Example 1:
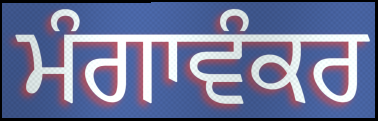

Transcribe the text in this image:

ਮੰਗਾਵੰਕਰ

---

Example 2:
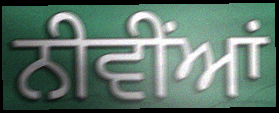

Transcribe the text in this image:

ਨੀਵੀਂਆਂ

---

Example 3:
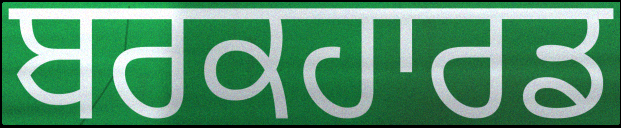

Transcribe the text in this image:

ਬਰਕਹਾਰਡ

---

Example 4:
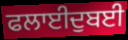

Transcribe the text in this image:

ਫਲਾਈਦੁਬਈ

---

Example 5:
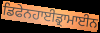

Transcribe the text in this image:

ਡਿਫੇਨਹਾਈਡ੍ਰਾਮਾਈਨ